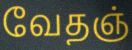
வேதஞ்